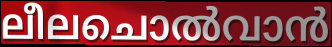
ലീലചൊൽവാൻ